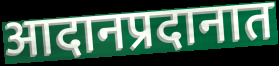
आदानप्रदानात